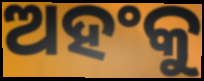
ଅହଂକୁ